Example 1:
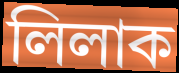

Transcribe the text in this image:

লিলাক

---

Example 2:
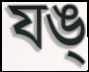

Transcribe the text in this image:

যঙ্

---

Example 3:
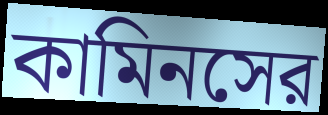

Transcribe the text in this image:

কামিনসের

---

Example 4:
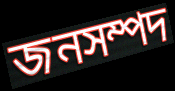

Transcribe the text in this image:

জনসম্পদ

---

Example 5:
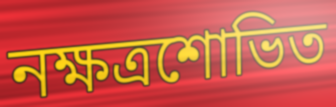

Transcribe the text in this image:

নক্ষত্রশোভিত